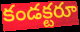
కండక్టరూ